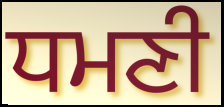
ਧਮਣੀ